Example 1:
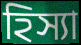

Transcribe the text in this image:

হিস্যা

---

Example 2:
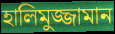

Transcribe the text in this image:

হালিমুজ্জামান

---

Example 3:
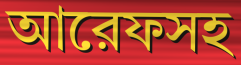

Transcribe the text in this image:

আরেফসহ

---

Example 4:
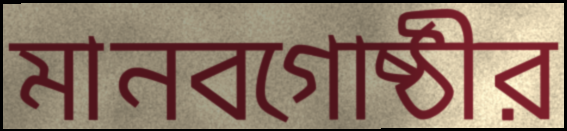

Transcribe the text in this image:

মানবগোষ্ঠীর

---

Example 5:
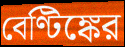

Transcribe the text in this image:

বেণ্টিঙ্কের